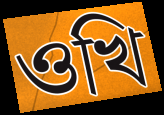
ওখি